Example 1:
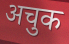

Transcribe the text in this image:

अचुक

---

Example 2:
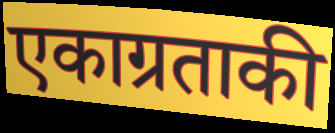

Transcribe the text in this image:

एकाग्रताकी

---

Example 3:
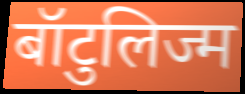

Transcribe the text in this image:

बॉटुलिज्म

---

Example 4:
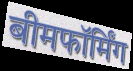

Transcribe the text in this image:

बीमफॉर्मिंग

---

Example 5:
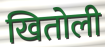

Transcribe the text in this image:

खितोली